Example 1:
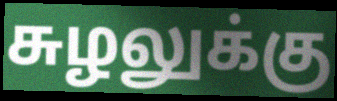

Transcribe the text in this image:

சுழலுக்கு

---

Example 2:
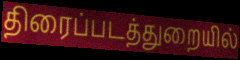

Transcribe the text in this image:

திரைப்படத்துறையில்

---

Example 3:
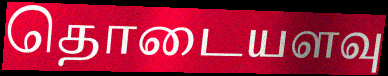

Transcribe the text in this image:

தொடையளவு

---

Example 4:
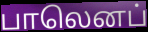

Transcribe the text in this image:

பாலெனப்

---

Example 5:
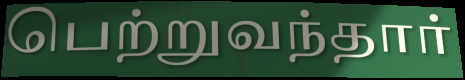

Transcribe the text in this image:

பெற்றுவந்தார்